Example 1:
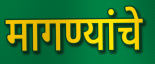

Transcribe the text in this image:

मागण्यांचे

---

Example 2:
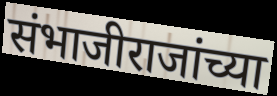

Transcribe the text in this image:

संभाजीराजांच्या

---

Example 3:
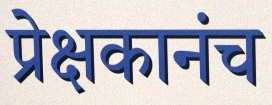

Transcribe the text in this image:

प्रेक्षकानंच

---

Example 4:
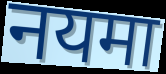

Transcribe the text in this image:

नयमा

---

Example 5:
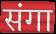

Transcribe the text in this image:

संगा